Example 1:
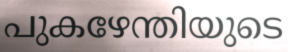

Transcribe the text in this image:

പുകഴേന്തിയുടെ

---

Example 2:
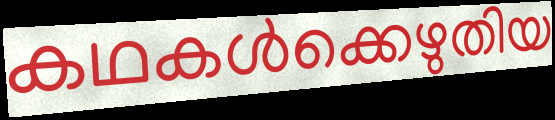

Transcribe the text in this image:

കഥകൾക്കെഴുതിയ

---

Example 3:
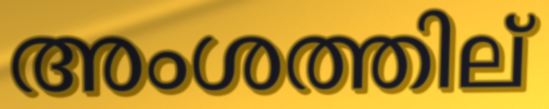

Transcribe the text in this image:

അംശത്തില്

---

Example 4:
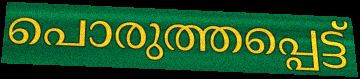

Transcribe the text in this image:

പൊരുത്തപ്പെട്ട്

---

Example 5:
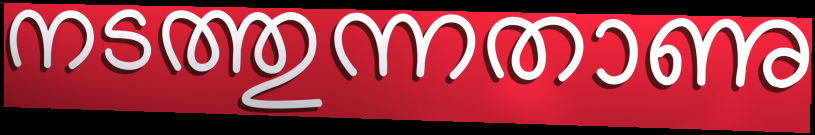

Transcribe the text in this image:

നടത്തുന്നതാണു